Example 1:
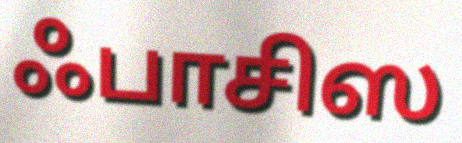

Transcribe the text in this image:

ஃபாசிஸ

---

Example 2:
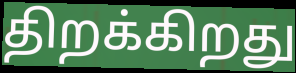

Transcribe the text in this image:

திறக்கிறது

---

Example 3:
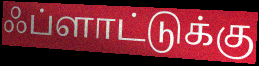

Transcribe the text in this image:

ஃப்ளாட்டுக்கு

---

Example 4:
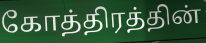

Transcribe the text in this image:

கோத்திரத்தின்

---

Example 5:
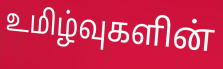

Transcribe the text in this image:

உமிழ்வுகளின்